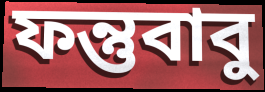
ফন্তুবাবু